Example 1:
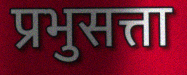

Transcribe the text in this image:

प्रभुसत्ता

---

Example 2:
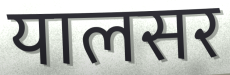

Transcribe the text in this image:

यालसर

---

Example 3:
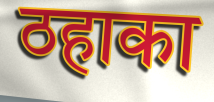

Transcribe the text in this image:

ठहाका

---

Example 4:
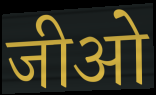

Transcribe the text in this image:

जीओ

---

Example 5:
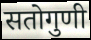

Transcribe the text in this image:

सतोगुणी